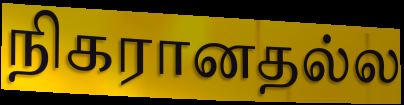
நிகரானதல்ல